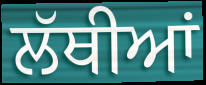
ਲੱਥੀਆਂ